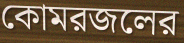
কোমরজলের